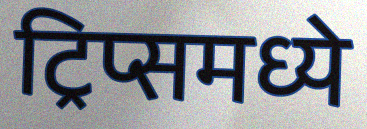
ट्रिप्समध्ये